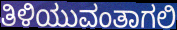
ತಿಳಿಯುವಂತಾಗಲಿ